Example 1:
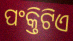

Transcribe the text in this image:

ପଂକ୍ତିଟିଏ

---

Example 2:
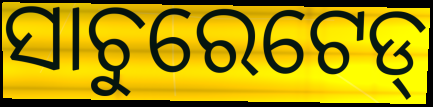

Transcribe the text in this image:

ସାଚୁରେଟେଡ୍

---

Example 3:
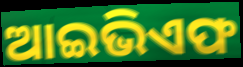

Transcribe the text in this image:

ଆଇଭିଏଫ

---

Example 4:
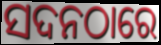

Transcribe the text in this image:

ସଦନଠାରେ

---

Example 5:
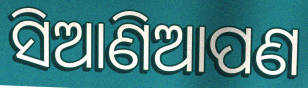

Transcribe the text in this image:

ସିଆଣିଆପଣ